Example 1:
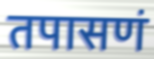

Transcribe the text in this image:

तपासणं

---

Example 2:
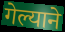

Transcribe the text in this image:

गेल्‍याने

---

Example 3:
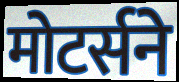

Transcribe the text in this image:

मोटर्सने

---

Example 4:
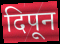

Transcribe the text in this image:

दिपून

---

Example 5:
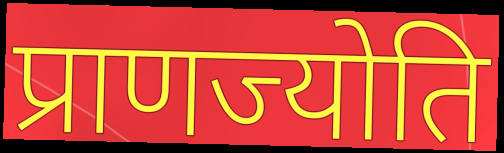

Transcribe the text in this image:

प्राणज्योति